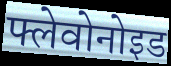
फ्लेवोनोइड